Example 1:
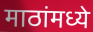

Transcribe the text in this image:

माठांमध्ये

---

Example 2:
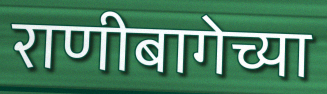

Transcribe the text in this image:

राणीबागेच्या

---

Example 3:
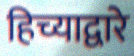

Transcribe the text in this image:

हिच्याद्वारे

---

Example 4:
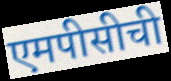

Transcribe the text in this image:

एमपीसीची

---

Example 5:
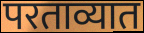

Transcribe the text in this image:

परताव्यात